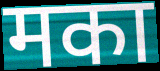
मका